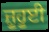
ਜ਼ੂਹੂਈ